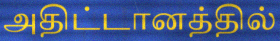
அதிட்டானத்தில்